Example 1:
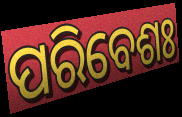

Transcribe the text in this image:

ପରିବେଶଃ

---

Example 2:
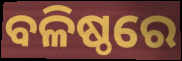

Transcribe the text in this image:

ବଳିଷ୍ଠରେ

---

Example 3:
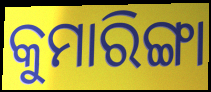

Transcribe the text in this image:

କୁମାରିଙ୍ଗା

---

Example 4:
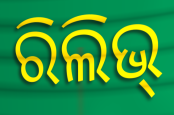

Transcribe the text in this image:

ରିଲିଭ୍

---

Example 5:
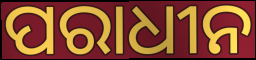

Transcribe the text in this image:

ପରାଧୀନ